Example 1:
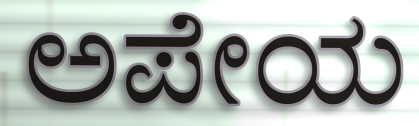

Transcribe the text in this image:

ಅಪೇಯ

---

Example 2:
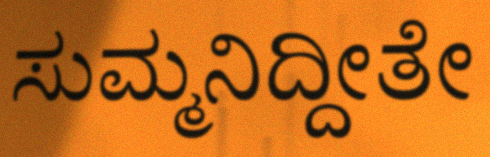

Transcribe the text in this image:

ಸುಮ್ಮನಿದ್ದೀತೇ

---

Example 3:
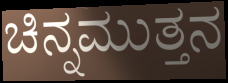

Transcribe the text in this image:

ಚಿನ್ನಮುತ್ತನ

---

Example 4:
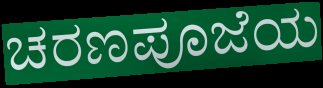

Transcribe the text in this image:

ಚರಣಪೂಜೆಯ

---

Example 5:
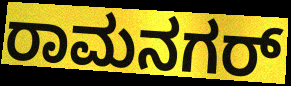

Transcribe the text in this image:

ರಾಮನಗರ್